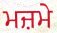
ਮਜ਼ਮੇ